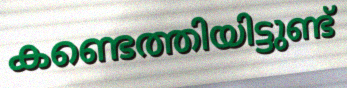
കണ്ടെത്തിയിട്ടുണ്ട്